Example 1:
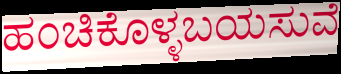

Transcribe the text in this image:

ಹಂಚಿಕೊಳ್ಳಬಯಸುವೆ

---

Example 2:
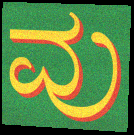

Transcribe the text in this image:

ವು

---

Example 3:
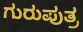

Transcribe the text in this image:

ಗುರುಪುತ್ರ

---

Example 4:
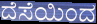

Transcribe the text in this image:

ದೆಸೆಯಿಂದ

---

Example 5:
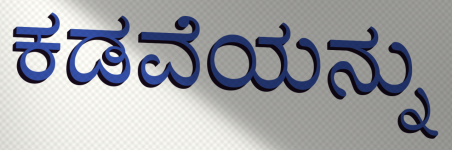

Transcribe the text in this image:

ಕಡವೆಯನ್ನು